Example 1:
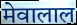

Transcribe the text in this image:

मेवालाल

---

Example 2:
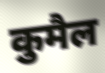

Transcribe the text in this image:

कुमैल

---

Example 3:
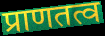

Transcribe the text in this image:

प्राणतत्व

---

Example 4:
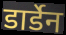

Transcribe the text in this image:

डार्डेन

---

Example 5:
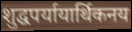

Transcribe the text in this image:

शुद्धपर्यायार्थिकनय